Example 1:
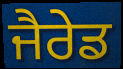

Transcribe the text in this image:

ਜੈਰੇਡ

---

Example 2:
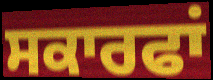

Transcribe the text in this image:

ਸਕਾਰਫਾਂ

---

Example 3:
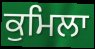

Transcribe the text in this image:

ਕੁਮਿਲਾ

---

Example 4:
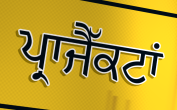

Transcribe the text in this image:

ਪ੍ਰਾਜੈੱਕਟਾਂ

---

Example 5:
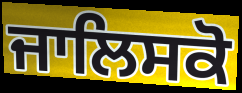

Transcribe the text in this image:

ਜਾਲਿਸਕੋ